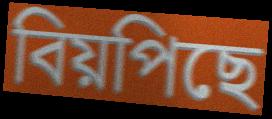
বিয়পিছে